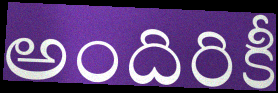
అందిరికీ